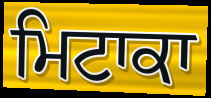
ਮਿਟਾਕਾ